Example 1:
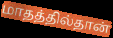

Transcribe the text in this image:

மாதத்தில்தான்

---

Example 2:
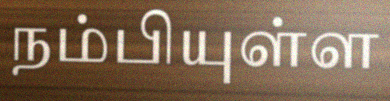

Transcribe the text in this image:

நம்பியுள்ள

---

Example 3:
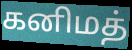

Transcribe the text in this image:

கனிமத்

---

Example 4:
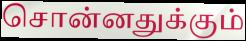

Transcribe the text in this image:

சொன்னதுக்கும்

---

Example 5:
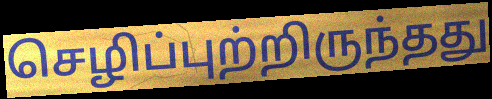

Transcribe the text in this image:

செழிப்புற்றிருந்தது